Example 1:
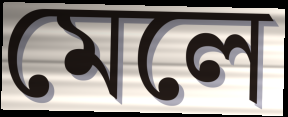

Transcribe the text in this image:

মেলে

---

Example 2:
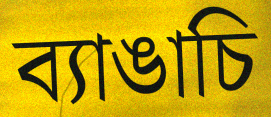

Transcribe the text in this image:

ব্যাঙাচি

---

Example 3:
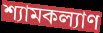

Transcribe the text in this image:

শ্যামকল্যাণ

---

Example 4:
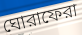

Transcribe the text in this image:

ঘোরাফেরা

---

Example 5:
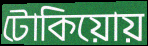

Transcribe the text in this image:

টোকিয়োয়